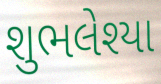
શુભલેશ્યા